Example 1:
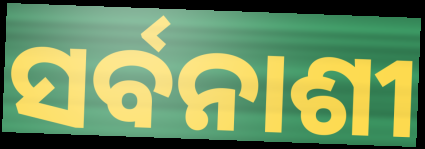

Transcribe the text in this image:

ସର୍ବନାଶୀ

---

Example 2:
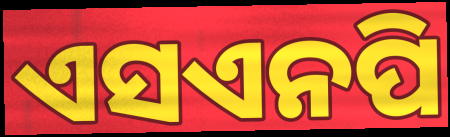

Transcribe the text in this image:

ଏସଏନପି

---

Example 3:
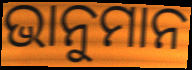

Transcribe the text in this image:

ଭାନୁମାନ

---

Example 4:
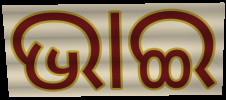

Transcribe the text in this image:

ଭାଇ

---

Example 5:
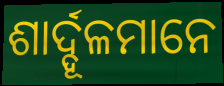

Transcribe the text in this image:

ଶାର୍ଦ୍ଦୂଳମାନେ